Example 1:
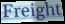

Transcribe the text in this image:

Freight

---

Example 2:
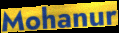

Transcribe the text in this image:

Mohanur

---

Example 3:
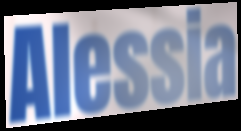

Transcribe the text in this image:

Alessia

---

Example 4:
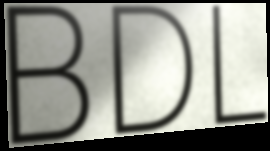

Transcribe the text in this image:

BDL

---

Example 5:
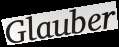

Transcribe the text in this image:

Glauber